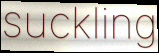
suckling